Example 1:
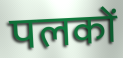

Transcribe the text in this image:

पलकों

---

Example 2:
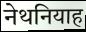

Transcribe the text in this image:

नेथनियाह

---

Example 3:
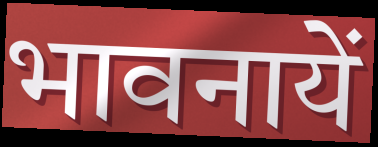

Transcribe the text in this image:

भावनायें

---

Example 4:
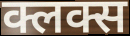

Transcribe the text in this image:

क्लक्स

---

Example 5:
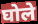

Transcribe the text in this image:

घोले